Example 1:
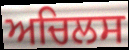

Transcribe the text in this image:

ਅਚਿਲਸ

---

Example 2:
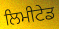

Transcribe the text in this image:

ਲਿਮੀਟੇਡ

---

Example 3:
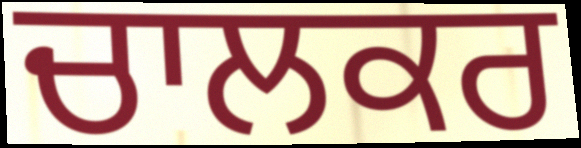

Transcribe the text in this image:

ਚਾਲਕਰ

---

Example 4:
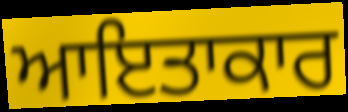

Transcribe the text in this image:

ਆਇਤਾਕਾਰ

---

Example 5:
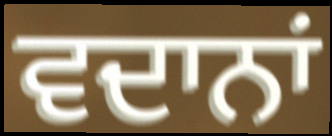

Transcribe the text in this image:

ਵਦਾਨਾਂ